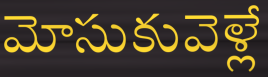
మోసుకువెళ్లే